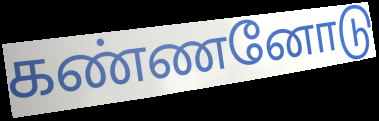
கண்ணனோடு